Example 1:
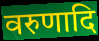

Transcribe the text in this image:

वरुणादि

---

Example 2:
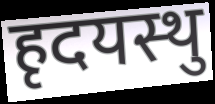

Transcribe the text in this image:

हृदयस्थु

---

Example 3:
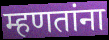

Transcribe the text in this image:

म्हणतांना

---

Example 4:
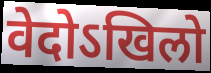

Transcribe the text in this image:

वेदोऽखिलो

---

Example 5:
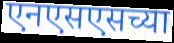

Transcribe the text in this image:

एनएसएसच्या